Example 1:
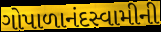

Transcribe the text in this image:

ગોપાળાનંદસ્વામીની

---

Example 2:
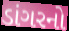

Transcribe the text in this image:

ડાંગરનો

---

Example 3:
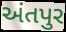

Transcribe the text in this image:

અંતપુર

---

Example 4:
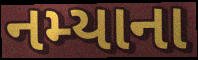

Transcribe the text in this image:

નમ્યાના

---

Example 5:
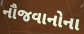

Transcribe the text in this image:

નૌજવાનોના